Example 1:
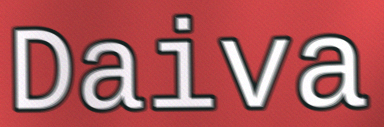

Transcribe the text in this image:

Daiva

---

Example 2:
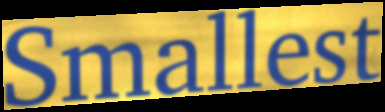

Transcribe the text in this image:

Smallest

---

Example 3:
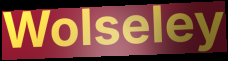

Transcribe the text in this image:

Wolseley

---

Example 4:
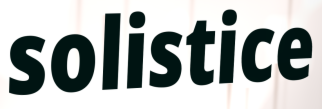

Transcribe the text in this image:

solistice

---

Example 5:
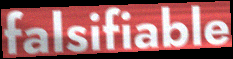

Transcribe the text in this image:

falsifiable